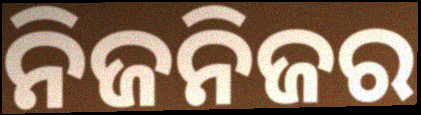
ନିଜନିଜର